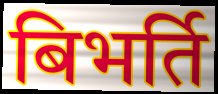
बिभर्ति